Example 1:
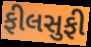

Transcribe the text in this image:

ફીલસુફી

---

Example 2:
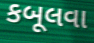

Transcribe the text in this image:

કબૂલવા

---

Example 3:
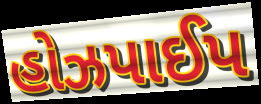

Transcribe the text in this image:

હોઝપાઈપ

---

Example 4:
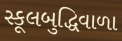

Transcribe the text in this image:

સ્કૂલબુદ્ધિવાળા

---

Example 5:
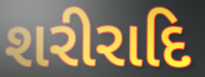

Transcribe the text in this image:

શરીરાદિ